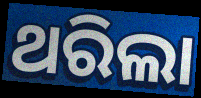
ଥରିଲା